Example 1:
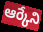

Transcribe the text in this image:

ఆర్కేని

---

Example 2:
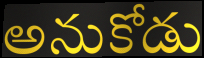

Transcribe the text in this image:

అనుకోడు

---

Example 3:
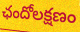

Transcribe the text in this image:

ఛందోలక్షణం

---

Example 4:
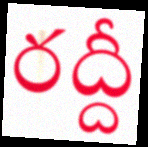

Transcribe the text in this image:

రద్దీ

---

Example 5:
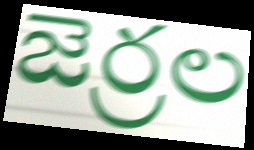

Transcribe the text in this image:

జెర్రల